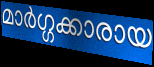
മാർഗ്ഗക്കാരായ